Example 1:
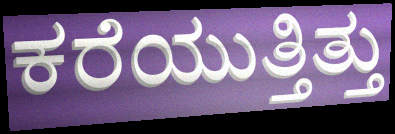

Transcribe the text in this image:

ಕರೆಯುತ್ತಿತ್ತು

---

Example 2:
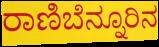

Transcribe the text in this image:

ರಾಣಿಬೆನ್ನೂರಿನ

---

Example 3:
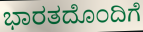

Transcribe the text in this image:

ಭಾರತದೊಂದಿಗೆ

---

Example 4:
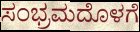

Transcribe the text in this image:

ಸಂಭ್ರಮದೊಳಗೆ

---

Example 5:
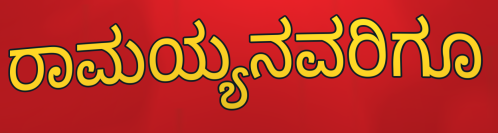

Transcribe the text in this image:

ರಾಮಯ್ಯನವರಿಗೂ